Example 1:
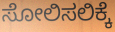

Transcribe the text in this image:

ಸೋಲಿಸಲಿಕ್ಕೆ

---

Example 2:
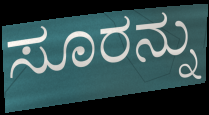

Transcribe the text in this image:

ಸೂರನ್ನು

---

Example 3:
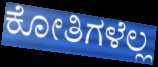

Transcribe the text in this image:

ಕೋತಿಗಳೆಲ್ಲ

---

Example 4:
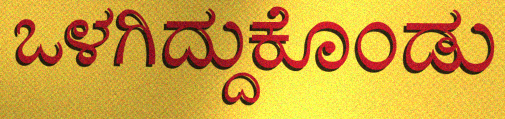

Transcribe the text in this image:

ಒಳಗಿದ್ದುಕೊಂಡು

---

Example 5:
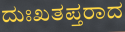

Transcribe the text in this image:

ದುಃಖತಪ್ತರಾದ